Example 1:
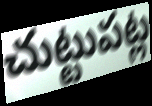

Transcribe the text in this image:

చుట్టుపట్ల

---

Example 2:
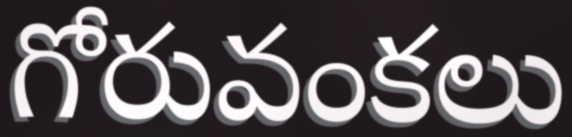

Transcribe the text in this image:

గోరువంకలు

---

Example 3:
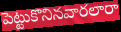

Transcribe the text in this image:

పెట్టుకొనినవారలారా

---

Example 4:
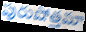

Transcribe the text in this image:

పురుషోత్తమా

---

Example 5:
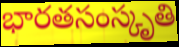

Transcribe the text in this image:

భారతసంస్కృతి